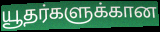
யூதர்களுக்கான